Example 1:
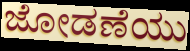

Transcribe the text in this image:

ಜೋಡಣೆಯು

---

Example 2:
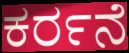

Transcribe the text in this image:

ಕರ್ರನೆ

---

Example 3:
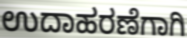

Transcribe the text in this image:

ಉದಾಹರಣೆಗಾಗಿ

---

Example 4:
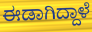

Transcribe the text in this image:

ಈಡಾಗಿದ್ದಾಳೆ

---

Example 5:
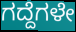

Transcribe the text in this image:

ಗದ್ದೆಗಳೇ